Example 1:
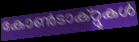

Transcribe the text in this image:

കോൺടാക്റ്റുകൾ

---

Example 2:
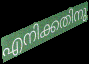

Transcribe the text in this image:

എനിക്കതിനു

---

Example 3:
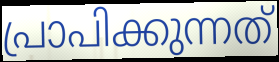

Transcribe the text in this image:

പ്രാപിക്കുന്നത്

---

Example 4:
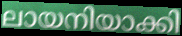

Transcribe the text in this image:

ലായനിയാക്കി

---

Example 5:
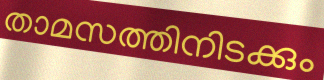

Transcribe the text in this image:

താമസത്തിനിടക്കും